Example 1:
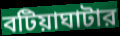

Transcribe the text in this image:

বটিয়াঘাটার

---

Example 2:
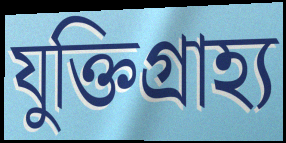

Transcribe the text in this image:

যুক্তিগ্রাহ্য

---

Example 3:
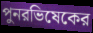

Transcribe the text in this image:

পুনরভিষেকের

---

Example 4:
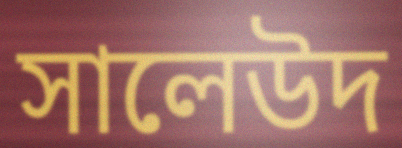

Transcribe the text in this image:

সালেউদ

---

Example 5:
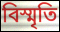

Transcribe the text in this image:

বিস্মৃতি